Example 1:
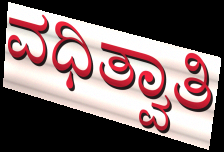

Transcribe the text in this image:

ವಧಿತ್ವಾತಿ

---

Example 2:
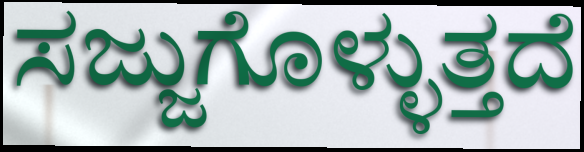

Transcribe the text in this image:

ಸಜ್ಜುಗೊಳ್ಳುತ್ತದೆ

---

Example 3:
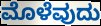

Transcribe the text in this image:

ಮೊಳೆವುದು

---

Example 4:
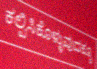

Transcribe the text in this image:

ಕಲ್ಪಿಸಿಕೊಳ್ಳುವುದಕ್ಕೂ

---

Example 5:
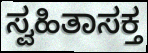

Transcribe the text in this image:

ಸ್ವಹಿತಾಸಕ್ತ